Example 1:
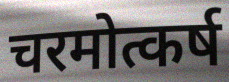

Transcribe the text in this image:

चरमोत्कर्ष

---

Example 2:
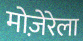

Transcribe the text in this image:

मोज़ेरेला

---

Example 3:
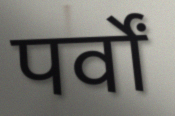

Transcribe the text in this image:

पर्वों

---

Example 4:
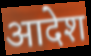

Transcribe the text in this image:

आदेश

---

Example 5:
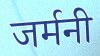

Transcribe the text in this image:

जर्मनी